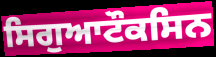
ਸਿਗੁਆਟੌਕਸਿਨ